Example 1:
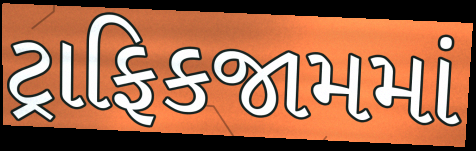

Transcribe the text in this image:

ટ્રાફિકજામમાં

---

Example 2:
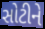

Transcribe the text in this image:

સોટીને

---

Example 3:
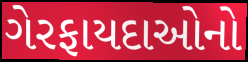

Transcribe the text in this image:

ગેરફાયદાઓનો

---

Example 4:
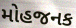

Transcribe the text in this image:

મોહજનક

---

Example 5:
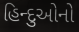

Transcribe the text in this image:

હિન્દુઓનો